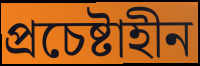
প্রচেষ্টাহীন